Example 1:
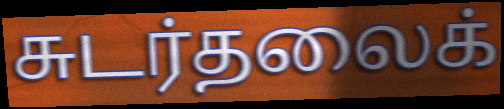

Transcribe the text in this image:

சுடர்தலைக்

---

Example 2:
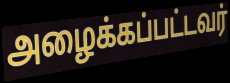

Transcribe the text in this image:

அழைக்கப்பட்டவர்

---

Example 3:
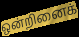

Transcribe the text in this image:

ஒன்றினைக்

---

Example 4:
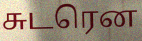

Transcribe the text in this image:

சுடரென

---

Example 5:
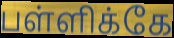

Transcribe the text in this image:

பள்ளிக்கே